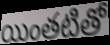
యింతటితో